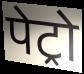
पेट्रो